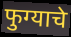
फुग्याचे